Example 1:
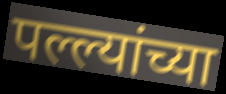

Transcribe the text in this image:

पल्ल्यांच्या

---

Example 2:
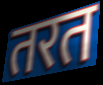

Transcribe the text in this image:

तरत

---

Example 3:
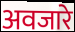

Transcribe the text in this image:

अवजारे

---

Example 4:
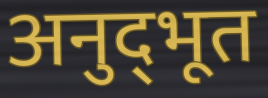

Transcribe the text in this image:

अनुद्भूत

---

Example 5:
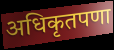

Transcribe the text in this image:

अधिकृतपणा